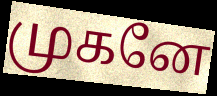
முகனே